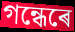
গন্ধেৰে